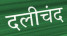
दलीचंद